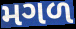
મગળ